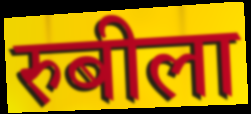
रुबीला